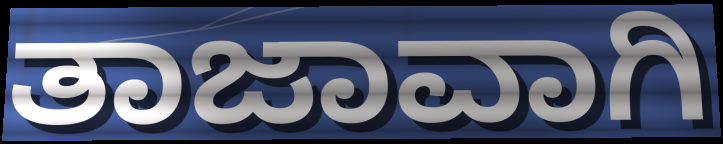
ತಾಜಾವಾಗಿ